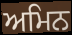
ਅਮਿਨ